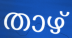
താഴ്